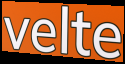
velte